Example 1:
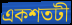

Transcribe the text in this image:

একশতটী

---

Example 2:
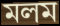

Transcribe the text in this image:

মলম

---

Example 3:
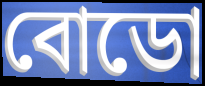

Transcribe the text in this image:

বোডো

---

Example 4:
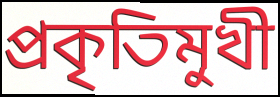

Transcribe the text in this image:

প্রকৃতিমুখী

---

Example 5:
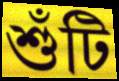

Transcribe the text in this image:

শুঁটি